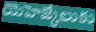
యెహెజ్కేలుకు